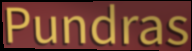
Pundras